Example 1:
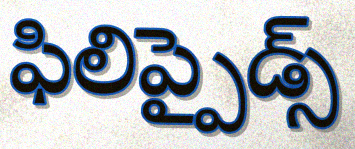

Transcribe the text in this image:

ఫిలిప్పైడ్స్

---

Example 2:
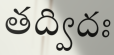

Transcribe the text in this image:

తద్విదః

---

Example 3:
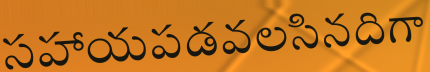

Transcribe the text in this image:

సహాయపడవలసినదిగా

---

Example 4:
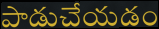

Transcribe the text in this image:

పాడుచేయడం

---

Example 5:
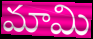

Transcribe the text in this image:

మామి